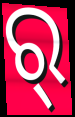
ର୍